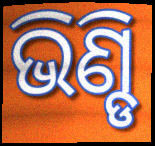
ଭିଣ୍ଡି